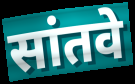
सांतवे